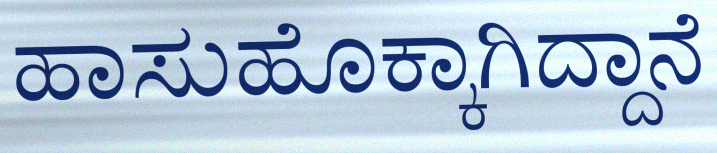
ಹಾಸುಹೊಕ್ಕಾಗಿದ್ದಾನೆ